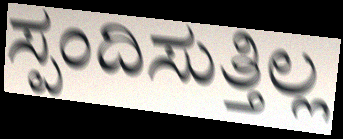
ಸ್ಪಂದಿಸುತ್ತಿಲ್ಲ